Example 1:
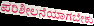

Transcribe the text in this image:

ಪರಿಶೀಲನೆಯಾಗಬೇಕು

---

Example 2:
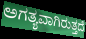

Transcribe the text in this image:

ಅಗತ್ಯವಾಗಿರುತ್ತದೆ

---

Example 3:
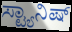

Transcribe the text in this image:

ಸ್ಟ್ಯಾನಿಷ್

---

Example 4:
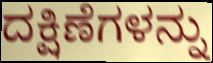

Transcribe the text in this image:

ದಕ್ಷಿಣೆಗಳನ್ನು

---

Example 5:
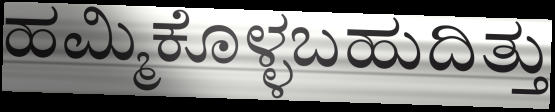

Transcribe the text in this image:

ಹಮ್ಮಿಕೊಳ್ಳಬಹುದಿತ್ತು